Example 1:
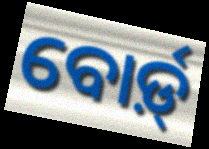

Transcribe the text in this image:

ବୋର୍ଡ଼୍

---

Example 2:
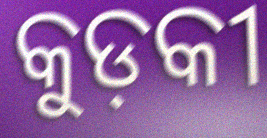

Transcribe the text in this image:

କୁଡ଼କୀ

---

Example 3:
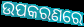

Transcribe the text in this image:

ଉପକରଣରେ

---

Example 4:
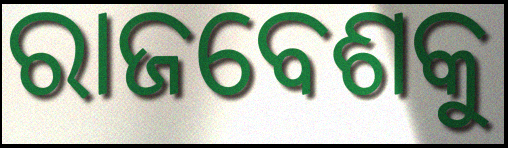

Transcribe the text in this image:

ରାଜବେଶକୁ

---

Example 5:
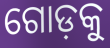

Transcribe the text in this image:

ଗୋଡ଼କୁ